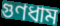
গুণধাম